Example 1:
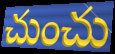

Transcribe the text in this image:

చుంచు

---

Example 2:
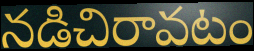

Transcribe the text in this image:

నడిచిరావటం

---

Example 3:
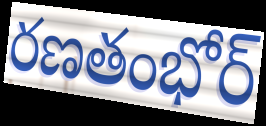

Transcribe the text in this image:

రణతంభోర్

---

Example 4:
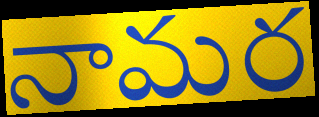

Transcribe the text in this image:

నామర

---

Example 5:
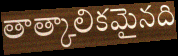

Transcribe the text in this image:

తాత్కాలికమైనది